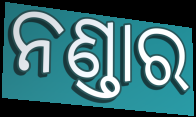
ନଣ୍ଡାର